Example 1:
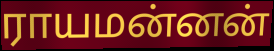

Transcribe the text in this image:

ராயமன்னன்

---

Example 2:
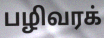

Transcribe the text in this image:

பழிவரக்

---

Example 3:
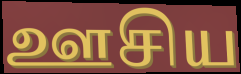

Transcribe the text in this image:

ஊசிய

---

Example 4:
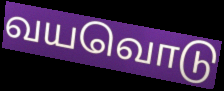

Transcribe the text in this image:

வயவொடு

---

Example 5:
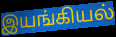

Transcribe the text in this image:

இயங்கியல்